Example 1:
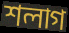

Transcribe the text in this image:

শলাগ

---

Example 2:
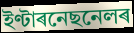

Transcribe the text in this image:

ইণ্টাৰনেছনেলৰ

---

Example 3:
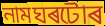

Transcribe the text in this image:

নামঘৰটোৰ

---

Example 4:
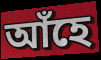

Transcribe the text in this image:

আঁহে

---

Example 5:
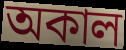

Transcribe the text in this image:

অকাল